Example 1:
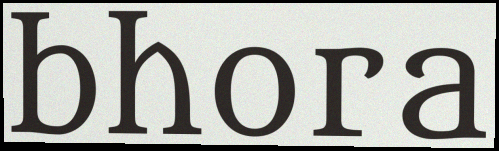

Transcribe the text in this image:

bhora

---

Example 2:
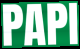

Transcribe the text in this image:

PAPI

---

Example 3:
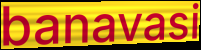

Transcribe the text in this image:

banavasi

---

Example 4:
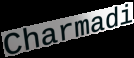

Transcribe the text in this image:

Charmadi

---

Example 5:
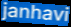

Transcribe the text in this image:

janhavi